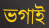
ভগাই